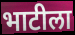
भाटीला